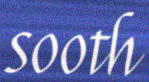
sooth